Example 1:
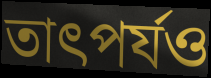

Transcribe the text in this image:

তাৎপৰ্যও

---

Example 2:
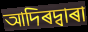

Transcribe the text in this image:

আদিৰদ্বাৰা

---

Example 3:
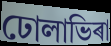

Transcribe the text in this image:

ঢোলাভিৰা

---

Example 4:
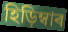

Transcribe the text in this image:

হিড়িম্বাৰ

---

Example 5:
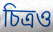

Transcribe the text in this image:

চিত্ৰও